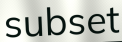
subset